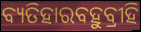
ବ୍ୟତିହାରବହୁବ୍ରୀହି